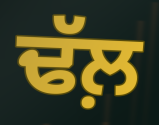
ਢੱਲ਼